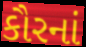
કૌરનાં